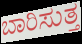
ಬಾರಿಸುತ್ತ